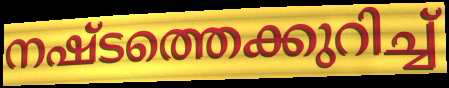
നഷ്ടത്തെക്കുറിച്ച്